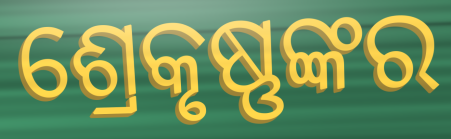
ଶ୍ରେକୃଷ୍ଣଙ୍କର